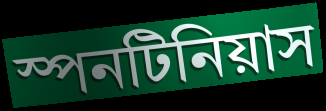
স্পনটিনিয়াস